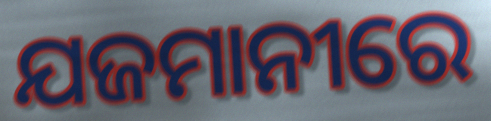
ଯଜମାନୀରେ